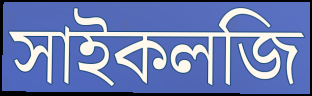
সাইকলজি